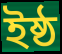
ইষ্ঠ